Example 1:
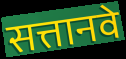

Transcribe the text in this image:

सत्तानवे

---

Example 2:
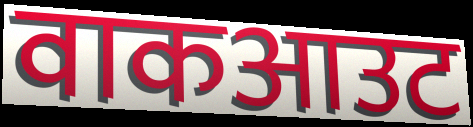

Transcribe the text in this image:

वाकआउट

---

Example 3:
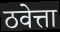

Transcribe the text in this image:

ठवेत्ता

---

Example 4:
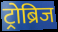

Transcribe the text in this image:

ट्रोब्रिज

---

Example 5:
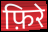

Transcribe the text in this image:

फ़िरे